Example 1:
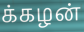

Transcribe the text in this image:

க்கழன்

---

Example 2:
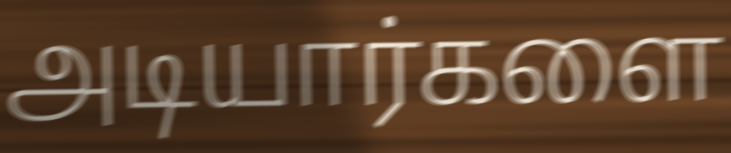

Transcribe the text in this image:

அடியார்களை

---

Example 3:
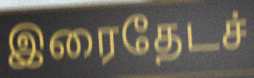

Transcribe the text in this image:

இரைதேடச்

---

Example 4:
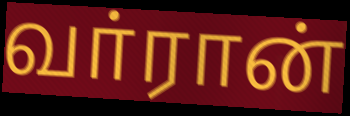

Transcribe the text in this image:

வர்ரான்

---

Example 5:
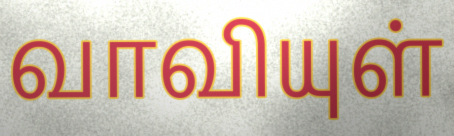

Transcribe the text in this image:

வாவியுள்